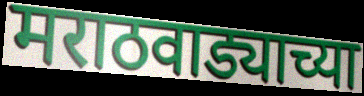
मराठवाड्याच्या